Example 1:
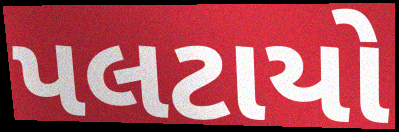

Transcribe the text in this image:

પલટાયો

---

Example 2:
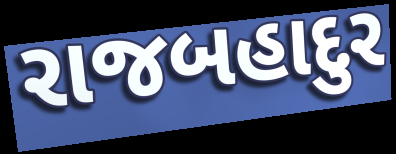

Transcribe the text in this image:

રાજબહાદુર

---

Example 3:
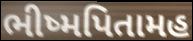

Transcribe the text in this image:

ભીષ્મપિતામહ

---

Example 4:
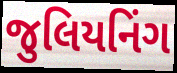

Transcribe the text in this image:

જુલિયનિંગ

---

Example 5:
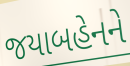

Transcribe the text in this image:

જયાબહેનને